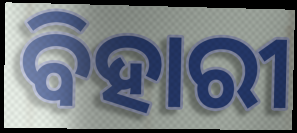
ବିହାରୀ